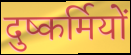
दुष्कर्मियों